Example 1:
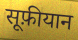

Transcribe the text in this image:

सूफ़ीयान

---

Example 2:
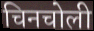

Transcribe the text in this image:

चिनचोली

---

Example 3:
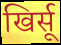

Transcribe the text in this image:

खिर्सू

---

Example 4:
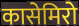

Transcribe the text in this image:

कासेमिरो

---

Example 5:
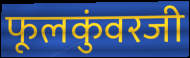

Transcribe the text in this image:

फूलकुंवरजी